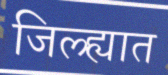
जिल्ह्यात